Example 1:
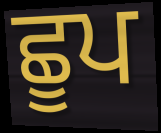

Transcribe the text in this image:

ਛੂਪ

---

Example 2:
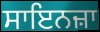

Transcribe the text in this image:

ਸਾਇਨਜ਼ਾ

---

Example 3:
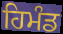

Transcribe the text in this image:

ਹਿਮੰਡ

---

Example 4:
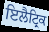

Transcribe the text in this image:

ਇਲੈਟ੍ਰਿਕ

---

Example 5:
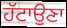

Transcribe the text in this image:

ਹੱਟਾਉਣਾ